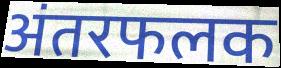
अंतरफलक